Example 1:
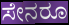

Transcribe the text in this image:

ಸೇನರೂ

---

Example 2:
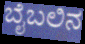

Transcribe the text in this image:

ಬೈಬಲಿನ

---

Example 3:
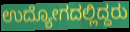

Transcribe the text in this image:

ಉದ್ಯೋಗದಲ್ಲಿದ್ದರು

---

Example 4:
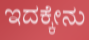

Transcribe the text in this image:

ಇದಕ್ಕೇನು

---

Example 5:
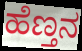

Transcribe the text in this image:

ಹೆಣ್ತನ